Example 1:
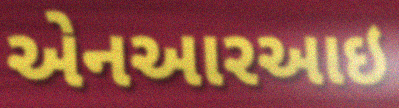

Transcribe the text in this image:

એનઆરઆઇ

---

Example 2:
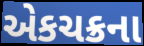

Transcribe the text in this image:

એકચક્રના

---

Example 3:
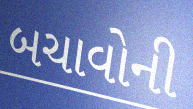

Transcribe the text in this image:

બચાવોની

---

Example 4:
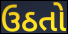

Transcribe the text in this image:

ઉઠતો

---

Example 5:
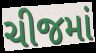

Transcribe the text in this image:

ચીજમાં